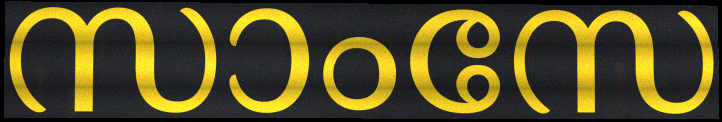
സാംസേ